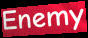
Enemy